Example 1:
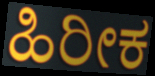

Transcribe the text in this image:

ಹಿರೀಕ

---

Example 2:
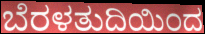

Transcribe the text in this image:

ಬೆರಳತುದಿಯಿಂದ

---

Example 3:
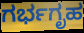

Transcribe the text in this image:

ಗರ್ಭಗೃಹ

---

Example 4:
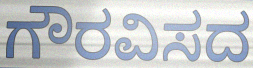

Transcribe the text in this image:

ಗೌರವಿಸದ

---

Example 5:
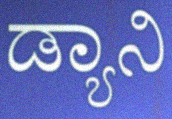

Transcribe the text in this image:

ಡ್ಯಾನಿ